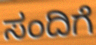
ಸಂದಿಗೆ